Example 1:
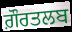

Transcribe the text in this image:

ਗ਼ੌਰਤਲਬ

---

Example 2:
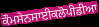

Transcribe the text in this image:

ਕੌਮਸੇਨਸਾਈਕਲੋਪੀਡੀਆ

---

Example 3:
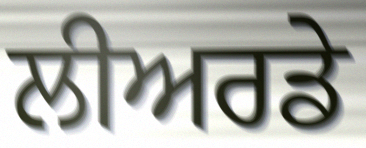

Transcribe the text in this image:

ਲੀਅਰਡੇ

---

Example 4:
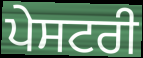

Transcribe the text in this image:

ਪੇਸਟਰੀ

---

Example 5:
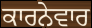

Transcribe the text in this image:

ਕਾਰਨੇਵਾਰ